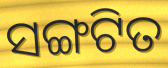
ସଙ୍ଗଟିତ